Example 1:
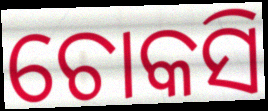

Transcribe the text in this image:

ଚୋକସି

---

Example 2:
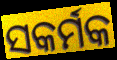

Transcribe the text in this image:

ସକର୍ମକ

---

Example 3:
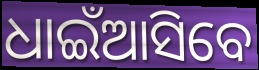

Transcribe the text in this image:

ଧାଇଁଆସିବେ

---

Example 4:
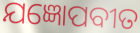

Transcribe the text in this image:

ଯଜ୍ଞୋପବୀତ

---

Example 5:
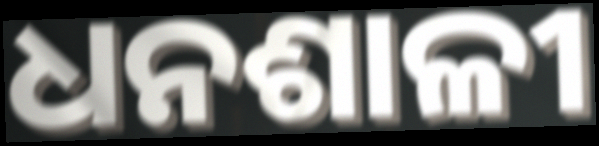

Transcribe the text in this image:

ଧନଶାଳୀ